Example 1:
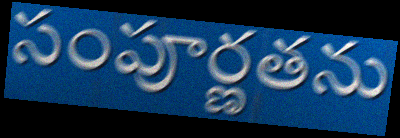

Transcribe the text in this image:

సంపూర్ణతను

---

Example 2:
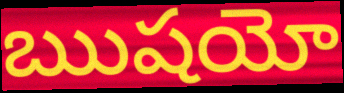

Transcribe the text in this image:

ఋషయో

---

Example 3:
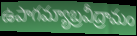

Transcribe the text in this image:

ఉపాగమ్యాబ్రవీద్రామం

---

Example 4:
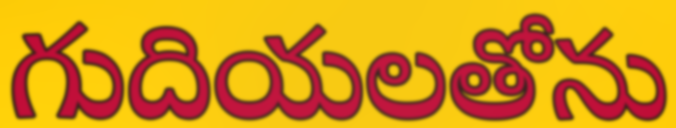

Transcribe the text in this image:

గుదియలతోను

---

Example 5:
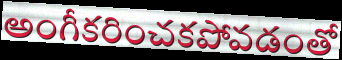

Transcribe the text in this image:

అంగీకరించకపోవడంతో